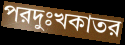
পরদুঃখকাতর